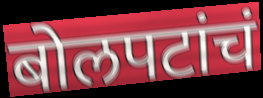
बोलपटांचं